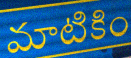
మాటికిం